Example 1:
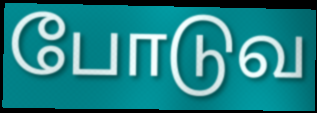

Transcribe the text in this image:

போடுவ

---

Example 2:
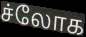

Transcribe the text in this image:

ச்லோக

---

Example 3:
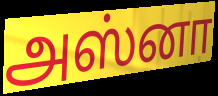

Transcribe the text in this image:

அஸ்னா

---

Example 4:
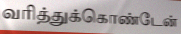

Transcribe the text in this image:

வரித்துக்கொண்டேன்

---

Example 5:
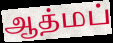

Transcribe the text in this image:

ஆத்மப்